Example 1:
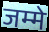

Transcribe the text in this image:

जम्मे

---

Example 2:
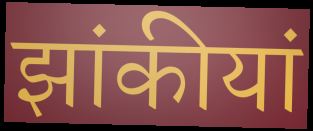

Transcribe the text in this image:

झांकीयां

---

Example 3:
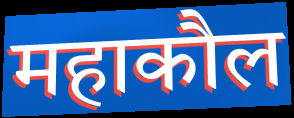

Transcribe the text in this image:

महाकौल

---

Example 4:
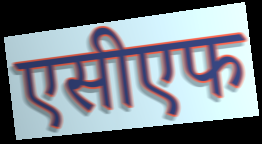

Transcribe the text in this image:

एसीएफ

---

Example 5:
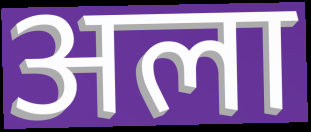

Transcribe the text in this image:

अला